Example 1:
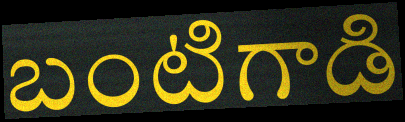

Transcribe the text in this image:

బంటిగాడి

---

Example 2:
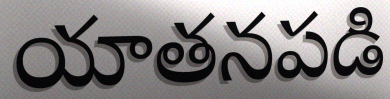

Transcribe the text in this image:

యాతనపడి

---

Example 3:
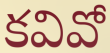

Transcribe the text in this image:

కవివో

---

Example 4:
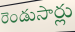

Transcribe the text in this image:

రెండుసార్లు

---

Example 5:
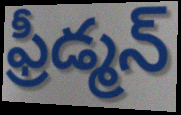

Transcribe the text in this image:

ఫ్రీడ్మన్